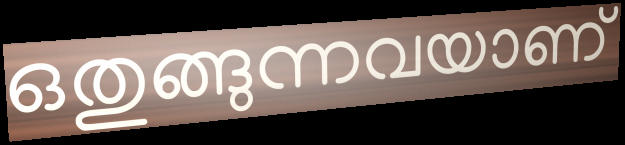
ഒതുങ്ങുന്നവയാണ്